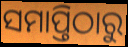
ସମାପ୍ତିଠାରୁ